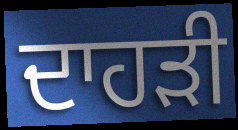
ਦਾਹੜੀ